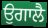
ਉਗਾਲੈ